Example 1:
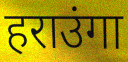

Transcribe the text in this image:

हराउंगा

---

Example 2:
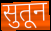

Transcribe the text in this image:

सुतून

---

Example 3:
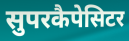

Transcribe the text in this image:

सुपरकैपेसिटर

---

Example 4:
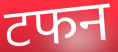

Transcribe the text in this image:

टफन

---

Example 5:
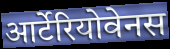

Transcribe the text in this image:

आर्टेरियोवेनस